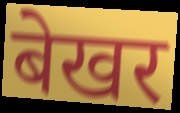
बेखर